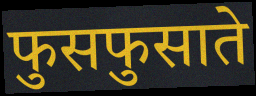
फुसफुसाते